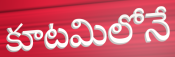
కూటమిలోనే